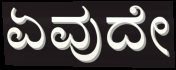
ಏವುದೇ